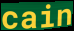
cain